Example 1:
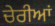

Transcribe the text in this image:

ਚੇਰੀਆਂ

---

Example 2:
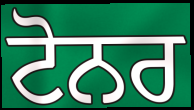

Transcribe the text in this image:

ਟੋਨਰ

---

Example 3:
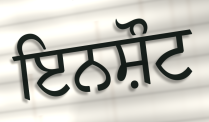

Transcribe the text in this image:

ਇਨਸ਼ੌਟ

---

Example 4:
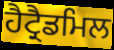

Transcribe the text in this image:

ਹੈਟ੍ਰੈਡਮਿਲ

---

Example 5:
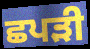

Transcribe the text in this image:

ਛਪੜੀ